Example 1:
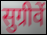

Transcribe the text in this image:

सुग्रीवें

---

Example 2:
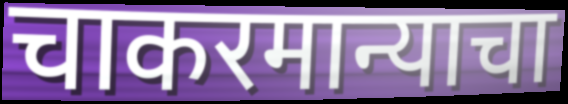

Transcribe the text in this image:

चाकरमान्याचा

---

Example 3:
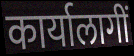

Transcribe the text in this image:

कार्यालागीं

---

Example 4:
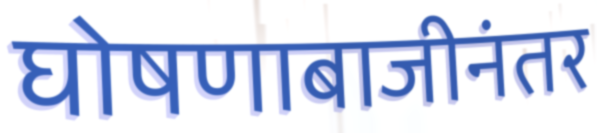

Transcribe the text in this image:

घोषणाबाजीनंतर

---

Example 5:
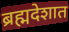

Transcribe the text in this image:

ब्रह्मदेशात